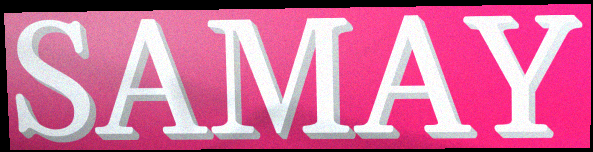
SAMAY